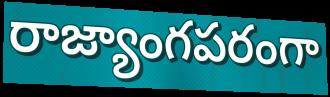
రాజ్యాంగపరంగా